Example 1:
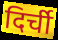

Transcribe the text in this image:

दिर्ची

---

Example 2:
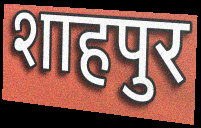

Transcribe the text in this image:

शाहपुर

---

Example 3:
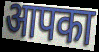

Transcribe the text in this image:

आपका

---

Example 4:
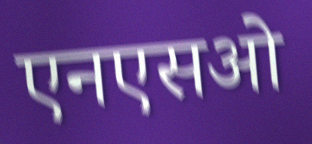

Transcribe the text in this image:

एनएसओ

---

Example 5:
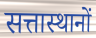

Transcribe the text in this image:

सत्तास्थानों